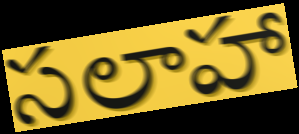
సలాహా